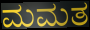
ಮಮತ